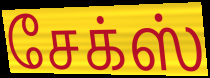
சேக்ஸ்